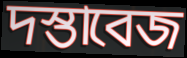
দস্তাবেজ